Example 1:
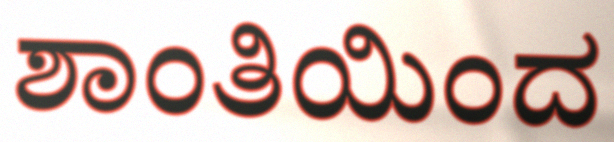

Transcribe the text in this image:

ಶಾಂತಿಯಿಂದ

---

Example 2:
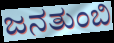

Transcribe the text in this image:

ಜನತುಂಬಿ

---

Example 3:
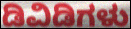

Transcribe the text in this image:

ಡಿವಿಡಿಗಳು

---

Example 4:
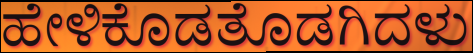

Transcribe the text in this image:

ಹೇಳಿಕೊಡತೊಡಗಿದಳು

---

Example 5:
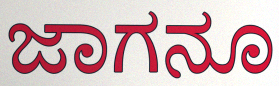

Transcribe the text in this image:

ಜಾಗನೂ